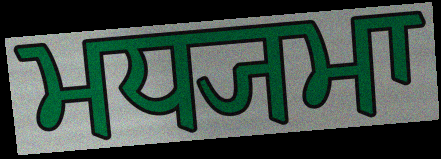
ਮਧ੍ਯਮਾ